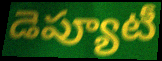
డెప్యూటీ